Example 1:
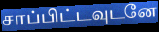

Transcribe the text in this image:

சாப்பிட்டவுடனே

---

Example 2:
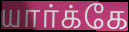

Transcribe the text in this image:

யார்க்கே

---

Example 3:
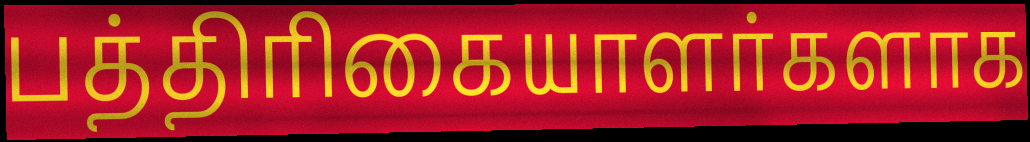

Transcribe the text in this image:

பத்திரிகையாளர்களாக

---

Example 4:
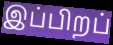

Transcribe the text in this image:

இப்பிறப்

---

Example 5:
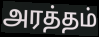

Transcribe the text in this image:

அரத்தம்